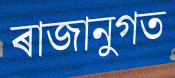
ৰাজানুগত